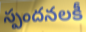
స్పందనలకీ